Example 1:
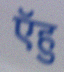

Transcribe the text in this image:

ऍहु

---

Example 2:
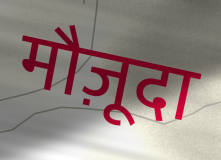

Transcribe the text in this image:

मौज़ूदा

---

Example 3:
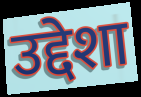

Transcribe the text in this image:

उद्देशा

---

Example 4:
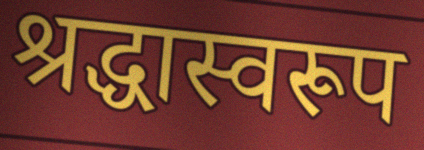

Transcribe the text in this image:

श्रद्धास्वरूप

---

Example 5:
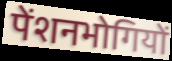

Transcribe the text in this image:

पेंशनभोगियों